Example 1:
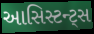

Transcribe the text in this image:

આસિસ્ટન્ટ્સ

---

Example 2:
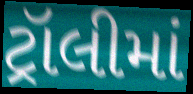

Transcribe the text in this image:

ટ્રૉલીમાં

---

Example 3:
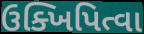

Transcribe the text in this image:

ઉક્ખિપિત્વા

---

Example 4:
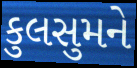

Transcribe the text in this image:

કુલસુમને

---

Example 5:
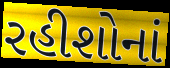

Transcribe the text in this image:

રહીશોનાં